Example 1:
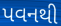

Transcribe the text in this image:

પવનથી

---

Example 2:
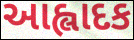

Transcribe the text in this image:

આહ્લાદક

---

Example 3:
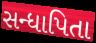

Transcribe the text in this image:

સન્ધાપિતા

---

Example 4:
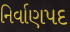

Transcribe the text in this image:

નિર્વાણપદ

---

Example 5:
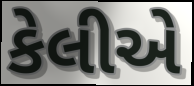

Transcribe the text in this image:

કેલીએ